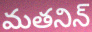
మతనిన్